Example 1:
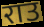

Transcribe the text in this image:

राउ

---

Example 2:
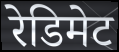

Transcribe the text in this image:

रेडिमेट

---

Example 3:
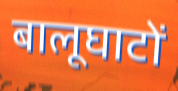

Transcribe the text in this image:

बालूघाटों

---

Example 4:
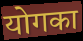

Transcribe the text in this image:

योगका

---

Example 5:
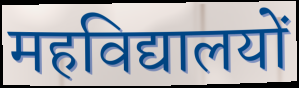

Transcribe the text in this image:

महविद्यालयों